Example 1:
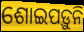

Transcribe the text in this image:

ଶୋଇପଡ଼ୁନି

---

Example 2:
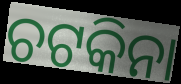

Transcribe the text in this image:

ଚଟକିନା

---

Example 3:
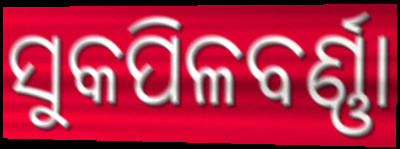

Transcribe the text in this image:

ସୁକପିଳବର୍ଣ୍ଣା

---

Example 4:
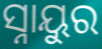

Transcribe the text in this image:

ସ୍ନାୟୁର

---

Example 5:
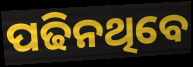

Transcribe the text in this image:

ପଢିନଥିବେ